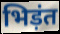
भिड़ंत